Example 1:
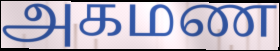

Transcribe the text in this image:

அகமண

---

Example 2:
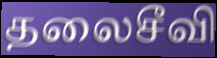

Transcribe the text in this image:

தலைசீவி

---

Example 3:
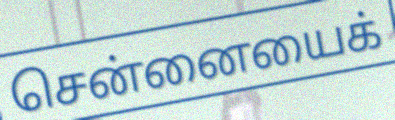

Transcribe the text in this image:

சென்னையைக்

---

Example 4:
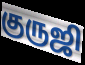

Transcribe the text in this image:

குருஜி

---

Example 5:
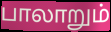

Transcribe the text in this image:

பாலாறும்